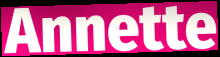
Annette